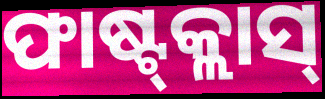
ଫାଷ୍ଟ୍‍କ୍ଲାସ୍